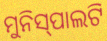
ମୁନିସ୍‍ପାଲଟି